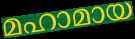
മഹാമായ